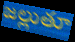
జల్లుతూ